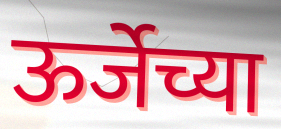
ऊर्जेच्या